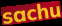
sachu